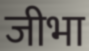
जीभा